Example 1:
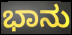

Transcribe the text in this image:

ಭಾನು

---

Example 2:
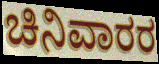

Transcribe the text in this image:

ಚಿನಿವಾರರ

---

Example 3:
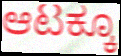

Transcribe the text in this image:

ಆಟಕ್ಕೂ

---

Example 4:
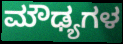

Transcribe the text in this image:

ಮೌಢ್ಯಗಳ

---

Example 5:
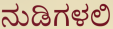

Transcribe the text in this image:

ನುಡಿಗಳಲಿ